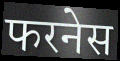
फरनेस